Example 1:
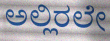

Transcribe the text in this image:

ಅಲ್ಲಿರಲೇ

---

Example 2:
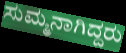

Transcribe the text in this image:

ಸುಮ್ಮನಾಗಿದ್ದರು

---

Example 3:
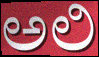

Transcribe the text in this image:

ಅಲಿ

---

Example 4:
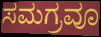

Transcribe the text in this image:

ಸಮಗ್ರವೂ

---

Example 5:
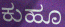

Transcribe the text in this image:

ಕುಹೂ